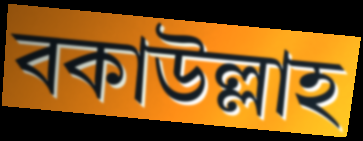
বকাউল্লাহ